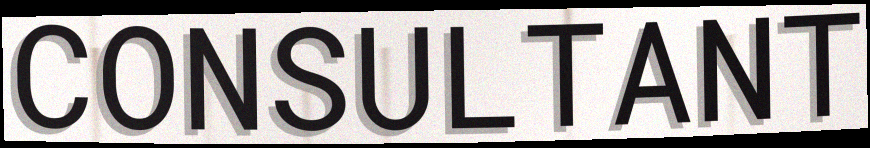
CONSULTANT